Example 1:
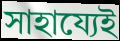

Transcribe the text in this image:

সাহায্যেই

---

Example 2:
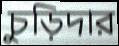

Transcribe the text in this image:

চুড়িদার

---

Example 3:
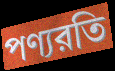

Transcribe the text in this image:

পণ্যরতি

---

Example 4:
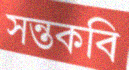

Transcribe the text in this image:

সন্তকবি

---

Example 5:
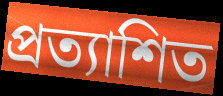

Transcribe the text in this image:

প্রত্যাশিত